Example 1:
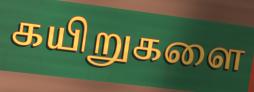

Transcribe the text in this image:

கயிறுகளை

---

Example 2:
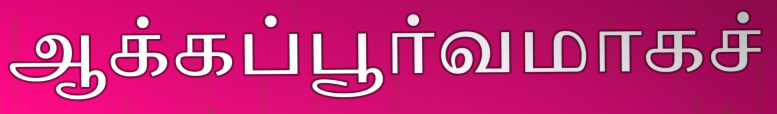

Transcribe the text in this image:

ஆக்கப்பூர்வமாகச்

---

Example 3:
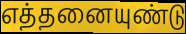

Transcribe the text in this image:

எத்தனையுண்டு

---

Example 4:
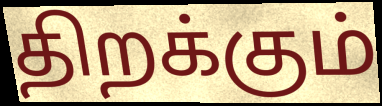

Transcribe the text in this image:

திறக்கும்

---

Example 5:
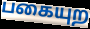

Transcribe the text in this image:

பகையுற